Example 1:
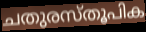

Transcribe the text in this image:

ചതുരസ്തൂപിക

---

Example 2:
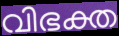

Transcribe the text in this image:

വിഭക്ത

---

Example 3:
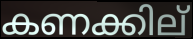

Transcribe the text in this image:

കണക്കില്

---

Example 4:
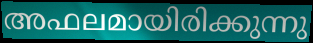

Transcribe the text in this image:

അഫലമായിരിക്കുന്നു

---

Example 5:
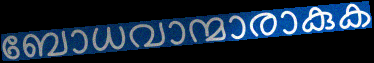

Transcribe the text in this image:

ബോധവാന്മാരാകുക